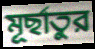
মূর্ছাতুর